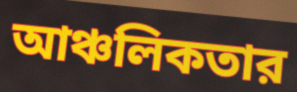
আঞ্চলিকতার